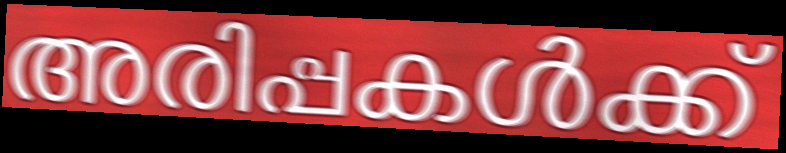
അരിപ്പകൾക്ക്